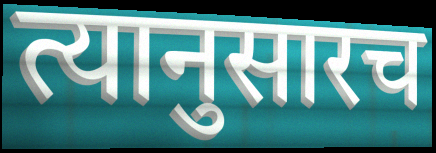
त्यानुसारच